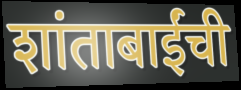
शांताबाईंची